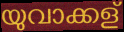
യുവാക്കള്